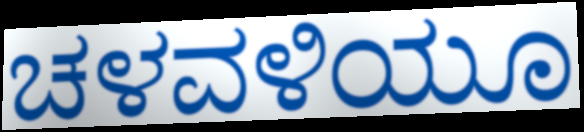
ಚಳವಳಿಯೂ